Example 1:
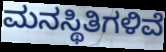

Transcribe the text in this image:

ಮನಸ್ಥಿತಿಗಳಿವೆ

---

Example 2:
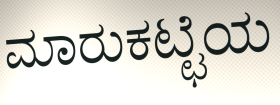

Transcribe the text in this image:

ಮಾರುಕಟ್ಟೆಯ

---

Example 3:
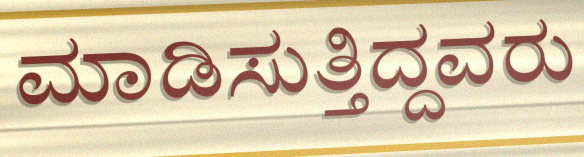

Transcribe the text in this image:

ಮಾಡಿಸುತ್ತಿದ್ದವರು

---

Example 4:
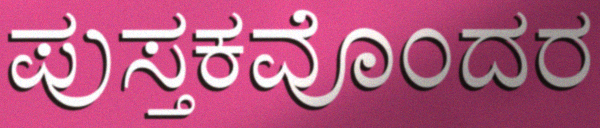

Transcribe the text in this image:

ಪುಸ್ತಕವೊಂದರ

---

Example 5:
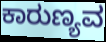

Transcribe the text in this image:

ಕಾರುಣ್ಯವ